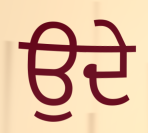
ਉਦੇ